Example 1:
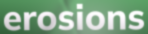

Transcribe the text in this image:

erosions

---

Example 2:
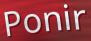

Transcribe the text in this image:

Ponir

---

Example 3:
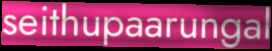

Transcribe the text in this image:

seithupaarungal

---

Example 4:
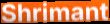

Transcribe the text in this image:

Shrimant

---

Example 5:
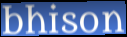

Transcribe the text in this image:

bhison